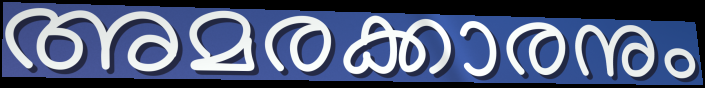
അമരക്കാരനും